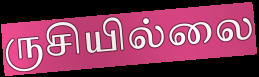
ருசியில்லை